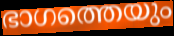
ഭാഗത്തെയും